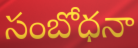
సంబోధనా